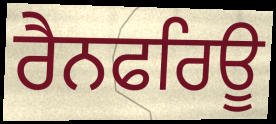
ਰੈਨਫਰਿਊ